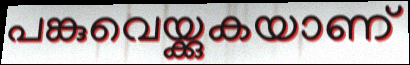
പങ്കുവെയ്ക്കുകയാണ്